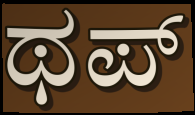
ಥಪ್